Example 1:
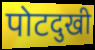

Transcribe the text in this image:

पोटदुखी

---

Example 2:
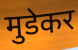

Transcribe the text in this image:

मुडेकर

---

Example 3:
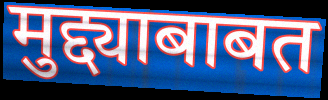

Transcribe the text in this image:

मुद्द्याबाबत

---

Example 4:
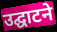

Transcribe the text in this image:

उद्घाटने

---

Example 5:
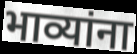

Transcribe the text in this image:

भाव्यांना